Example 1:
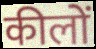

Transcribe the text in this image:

कीलों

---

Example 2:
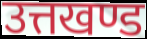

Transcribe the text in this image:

उत्तखण्ड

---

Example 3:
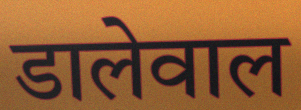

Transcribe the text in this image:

डालेवाल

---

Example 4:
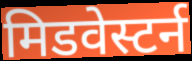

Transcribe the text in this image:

मिडवेस्टर्न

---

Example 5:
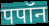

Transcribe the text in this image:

पपॉन